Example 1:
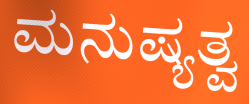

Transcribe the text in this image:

ಮನುಷ್ಯತ್ವ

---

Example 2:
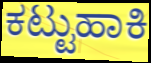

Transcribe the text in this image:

ಕಟ್ಟುಹಾಕಿ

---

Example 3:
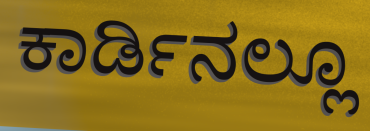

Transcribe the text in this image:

ಕಾರ್ಡಿನಲ್ಲೂ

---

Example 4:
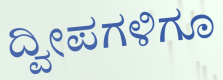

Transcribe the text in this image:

ದ್ವೀಪಗಳಿಗೂ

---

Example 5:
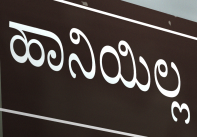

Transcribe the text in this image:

ಹಾನಿಯಿಲ್ಲ